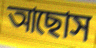
আছোস